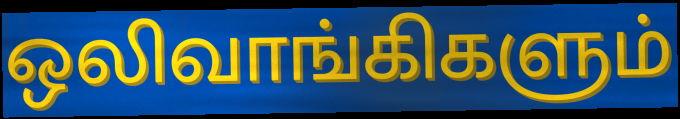
ஒலிவாங்கிகளும்